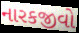
નારકજીવો